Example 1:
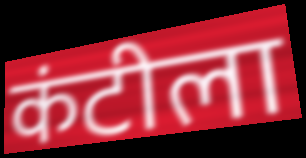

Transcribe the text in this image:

कंटीला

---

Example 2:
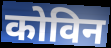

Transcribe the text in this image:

कोविन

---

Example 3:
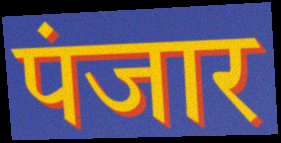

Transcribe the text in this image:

पंजार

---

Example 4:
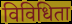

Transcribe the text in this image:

विविधिता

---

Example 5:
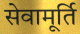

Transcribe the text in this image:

सेवामूर्ति